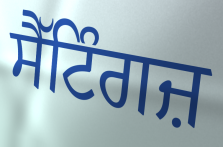
ਸੈੱਟਿੰਗਜ਼